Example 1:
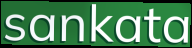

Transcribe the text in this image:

sankata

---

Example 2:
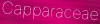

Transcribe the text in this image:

Capparaceae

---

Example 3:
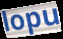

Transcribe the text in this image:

lopu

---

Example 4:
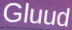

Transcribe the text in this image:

Gluud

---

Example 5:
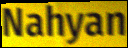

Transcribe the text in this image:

Nahyan